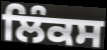
ਲਿੰਕਸ